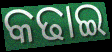
କଢାଇ